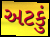
અટકું